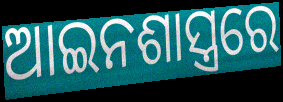
ଆଇନଶାସ୍ତ୍ରରେ